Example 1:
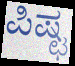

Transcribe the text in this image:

ಪಿಷ್ಟ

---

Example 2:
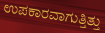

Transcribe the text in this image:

ಉಪಕಾರವಾಗುತ್ತಿತ್ತು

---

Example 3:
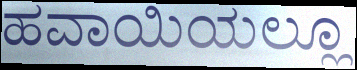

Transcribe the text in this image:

ಹವಾಯಿಯಲ್ಲೂ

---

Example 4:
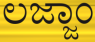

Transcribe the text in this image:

ಲಜ್ಜಾಂ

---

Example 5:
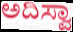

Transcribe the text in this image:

ಅದಿಸ್ವಾ